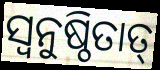
ସ୍ଵନୁଷ୍ଠିତାତ୍